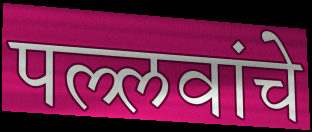
पल्लवांचे